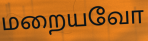
மறையவோ